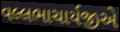
વલ્લભાચાર્યજીએ